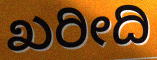
ಖರೀದಿ